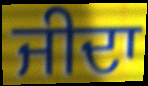
ਜੀਦਾ